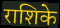
राशिके